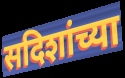
सदिशांच्या